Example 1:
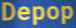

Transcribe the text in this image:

Depop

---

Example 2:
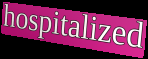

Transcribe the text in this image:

hospitalized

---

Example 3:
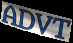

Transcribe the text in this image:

ADVT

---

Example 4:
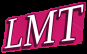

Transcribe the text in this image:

LMT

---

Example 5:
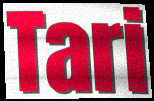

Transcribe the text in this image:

Tari